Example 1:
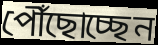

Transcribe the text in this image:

পৌঁছোচ্ছেন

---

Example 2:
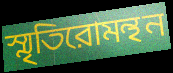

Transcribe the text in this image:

স্মৃতিরোমন্থন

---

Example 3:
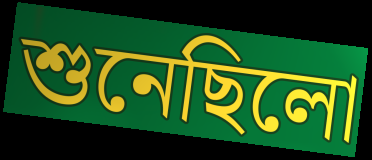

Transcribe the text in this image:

শুনেছিলো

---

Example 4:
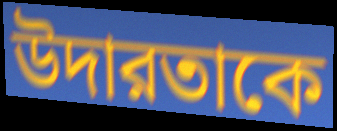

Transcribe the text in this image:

উদারতাকে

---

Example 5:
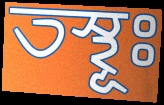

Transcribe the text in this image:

তস্থূঃ